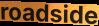
roadside